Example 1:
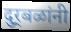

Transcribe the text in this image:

दुर्बळांनी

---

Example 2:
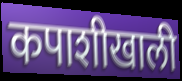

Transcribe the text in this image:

कपाशीखाली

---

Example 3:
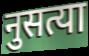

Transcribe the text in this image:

नुसत्या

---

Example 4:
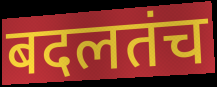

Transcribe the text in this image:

बदलतंच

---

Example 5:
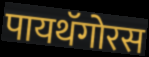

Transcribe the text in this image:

पायथॅगोरस